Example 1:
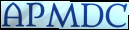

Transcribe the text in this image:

APMDC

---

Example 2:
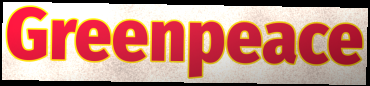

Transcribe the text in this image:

Greenpeace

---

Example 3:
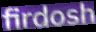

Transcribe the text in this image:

firdosh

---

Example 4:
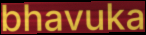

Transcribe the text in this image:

bhavuka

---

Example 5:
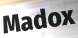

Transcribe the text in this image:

Madox